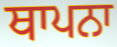
ਥਾਪਨਾ